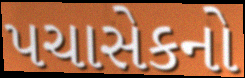
પચાસેકનો